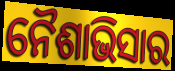
ନୈଶାଭିସାର